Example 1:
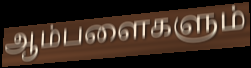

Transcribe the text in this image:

ஆம்பளைகளும்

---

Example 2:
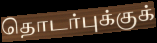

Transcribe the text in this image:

தொடர்புக்குக்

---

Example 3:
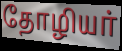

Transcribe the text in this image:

தோழியர்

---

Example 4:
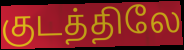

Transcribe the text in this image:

குடத்திலே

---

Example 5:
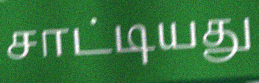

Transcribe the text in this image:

சாட்டியது